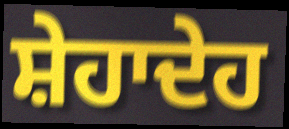
ਸ਼ੇਹਾਦੇਹ